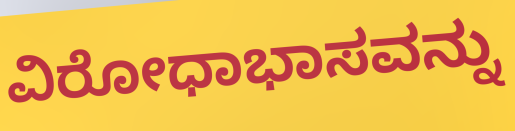
ವಿರೋಧಾಭಾಸವನ್ನು